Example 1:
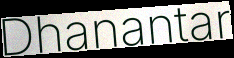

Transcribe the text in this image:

Dhanantar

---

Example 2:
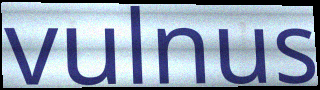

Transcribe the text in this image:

vulnus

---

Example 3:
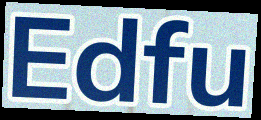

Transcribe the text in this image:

Edfu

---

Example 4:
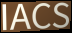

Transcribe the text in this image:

IACS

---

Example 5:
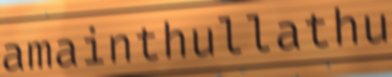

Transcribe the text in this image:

amainthullathu